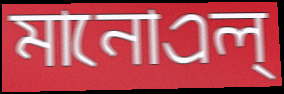
মানোএল্